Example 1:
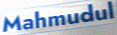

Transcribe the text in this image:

Mahmudul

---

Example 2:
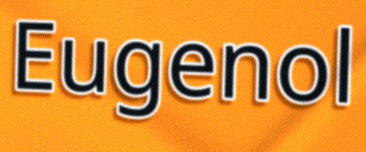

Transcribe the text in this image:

Eugenol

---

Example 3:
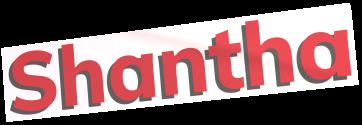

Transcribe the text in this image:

Shantha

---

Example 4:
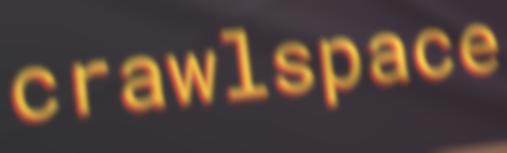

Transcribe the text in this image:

crawlspace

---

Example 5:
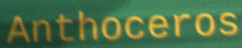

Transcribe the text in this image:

Anthoceros